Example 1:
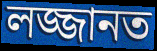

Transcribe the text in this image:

লজ্জানত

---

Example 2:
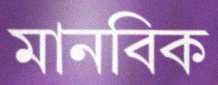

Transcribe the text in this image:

মানবিক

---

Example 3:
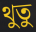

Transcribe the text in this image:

থুতু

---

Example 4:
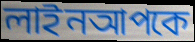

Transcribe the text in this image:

লাইনআপকে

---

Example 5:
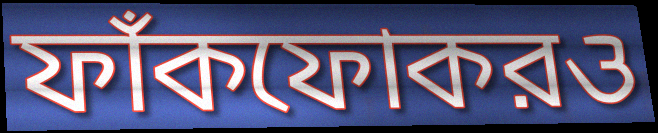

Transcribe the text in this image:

ফাঁকফোকরও